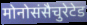
मोनोसंसैचुरेटेड